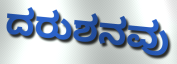
ದರುಶನವು